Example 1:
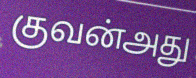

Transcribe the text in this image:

குவன்அது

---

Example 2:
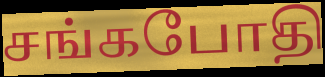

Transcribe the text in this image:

சங்கபோதி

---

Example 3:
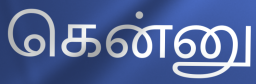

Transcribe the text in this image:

கென்னு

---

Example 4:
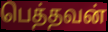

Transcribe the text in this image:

பெத்தவன்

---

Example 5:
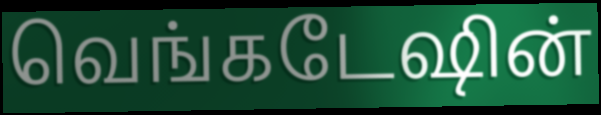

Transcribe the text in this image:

வெங்கடேஷின்